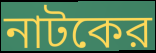
নাটকের